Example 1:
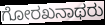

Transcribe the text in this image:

ಗೋರಖನಾಥರು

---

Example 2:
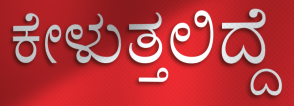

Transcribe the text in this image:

ಕೇಳುತ್ತಲಿದ್ದೆ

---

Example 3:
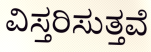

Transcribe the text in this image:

ವಿಸ್ತರಿಸುತ್ತವೆ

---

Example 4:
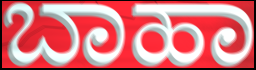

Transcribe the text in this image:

ಬಾಹಾ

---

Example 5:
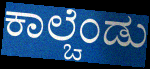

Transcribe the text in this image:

ಕಾಲ್ಚೆಂಡು